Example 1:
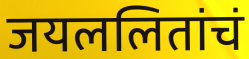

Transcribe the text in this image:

जयललितांचं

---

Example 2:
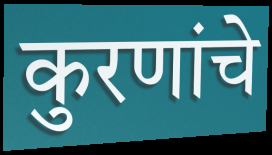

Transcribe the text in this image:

कुरणांचे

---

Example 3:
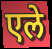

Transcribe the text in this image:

एले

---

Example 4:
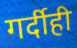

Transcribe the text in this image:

गर्दीही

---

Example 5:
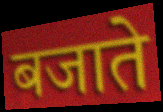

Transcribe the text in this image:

बजाते